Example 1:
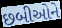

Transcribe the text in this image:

છબીઓને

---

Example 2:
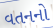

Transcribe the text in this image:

વતનનો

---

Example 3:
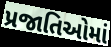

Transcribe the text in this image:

પ્રજાતિઓમાં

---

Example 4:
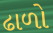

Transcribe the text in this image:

ઢાળો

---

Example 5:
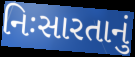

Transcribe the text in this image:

નિઃસારતાનું